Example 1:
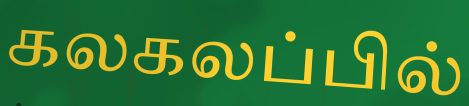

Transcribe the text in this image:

கலகலப்பில்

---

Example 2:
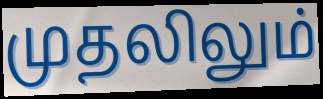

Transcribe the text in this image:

முதலிலும்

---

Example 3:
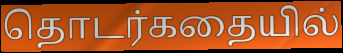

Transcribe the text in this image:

தொடர்கதையில்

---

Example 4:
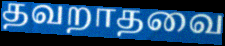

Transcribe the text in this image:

தவறாதவை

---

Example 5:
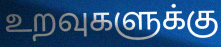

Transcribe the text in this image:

உறவுகளுக்கு